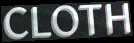
CLOTH